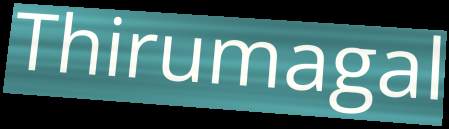
Thirumagal